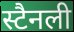
स्टैनली